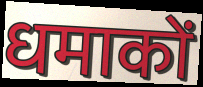
धमाकों